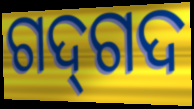
ଗଦ୍‌ଗଦ